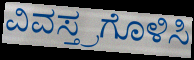
ವಿವಸ್ತ್ರಗೊಳಿಸಿ